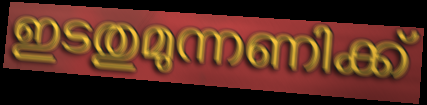
ഇടതുമുന്നണിക്ക്